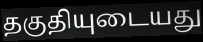
தகுதியுடையது